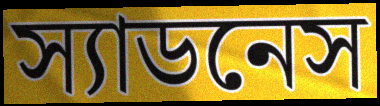
স্যাডনেস